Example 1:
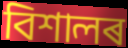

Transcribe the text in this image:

বিশালৰ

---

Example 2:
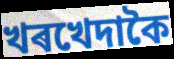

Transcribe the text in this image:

খৰখেদাকৈ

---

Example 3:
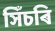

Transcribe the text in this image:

সিঁচৰি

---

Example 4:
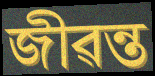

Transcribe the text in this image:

জীৱন্ত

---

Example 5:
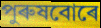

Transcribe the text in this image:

পুৰুষবোৰে